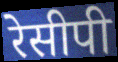
रेसीपी